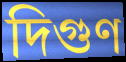
দিগুণ